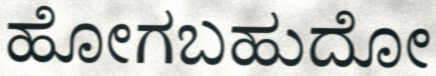
ಹೋಗಬಹುದೋ